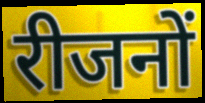
रीजनों